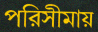
পরিসীমায়